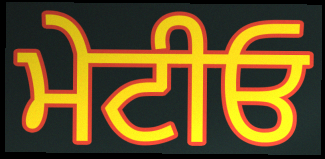
ਮੇਟੀਓ